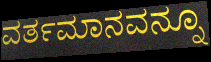
ವರ್ತಮಾನವನ್ನೂ